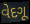
વેદગૂ